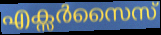
എക്സർസൈസ്